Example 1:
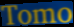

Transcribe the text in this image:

Tomo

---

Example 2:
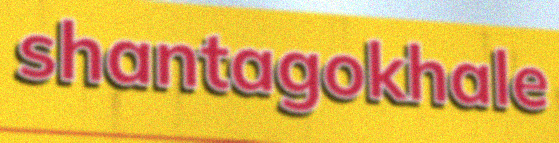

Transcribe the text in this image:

shantagokhale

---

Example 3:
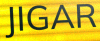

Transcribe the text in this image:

JIGAR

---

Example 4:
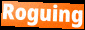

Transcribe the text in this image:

Roguing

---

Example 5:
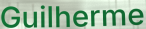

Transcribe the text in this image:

Guilherme